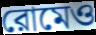
রোমেও